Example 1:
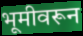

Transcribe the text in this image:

भूमीवरून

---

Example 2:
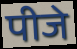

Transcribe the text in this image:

पीजे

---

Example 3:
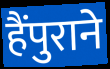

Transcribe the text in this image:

हैंपुराने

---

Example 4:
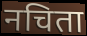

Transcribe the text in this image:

नचिता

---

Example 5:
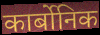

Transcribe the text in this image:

कार्बोनिक